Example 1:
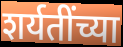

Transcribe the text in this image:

शर्यतींच्या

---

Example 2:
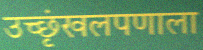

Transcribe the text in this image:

उच्छृंखलपणाला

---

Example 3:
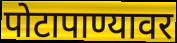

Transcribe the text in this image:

पोटापाण्यावर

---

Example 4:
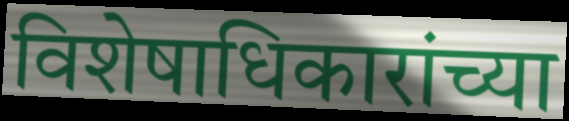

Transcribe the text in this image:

विशेषाधिकारांच्या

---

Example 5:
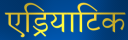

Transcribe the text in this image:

एड्रियाटिक